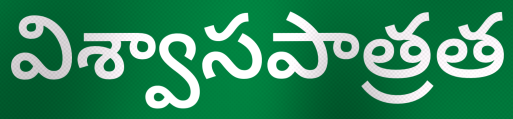
విశ్వాసపాత్రత